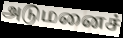
அடுமனைச்